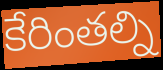
కేరింతల్ని